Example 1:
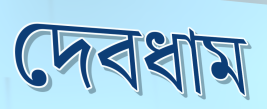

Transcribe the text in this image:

দেবধাম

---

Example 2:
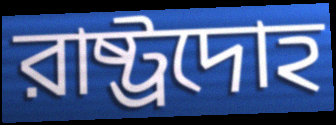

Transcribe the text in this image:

রাষ্ট্রদোহ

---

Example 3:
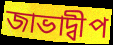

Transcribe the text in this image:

জাভাদ্বীপ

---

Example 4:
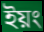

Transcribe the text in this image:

ইয়ং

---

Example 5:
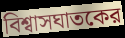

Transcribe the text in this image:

বিশ্বাসঘাতকের